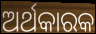
ଅର୍ଥକାରକ